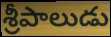
శ్రీపాలుడు